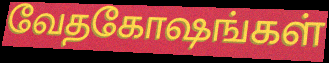
வேதகோஷங்கள்